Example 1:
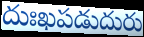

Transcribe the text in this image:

దుఃఖపడుదురు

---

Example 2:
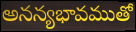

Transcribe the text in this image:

అనన్యభావముతో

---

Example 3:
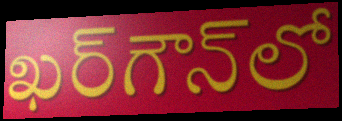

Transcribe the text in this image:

ఖర్‌గౌన్‌లో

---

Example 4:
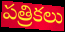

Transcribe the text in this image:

పత్రికలు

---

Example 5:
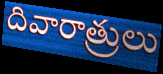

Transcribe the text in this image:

దివారాత్రులు